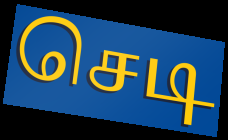
செடி